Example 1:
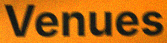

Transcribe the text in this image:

Venues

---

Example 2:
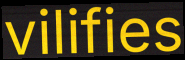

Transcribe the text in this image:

vilifies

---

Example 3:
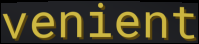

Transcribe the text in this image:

venient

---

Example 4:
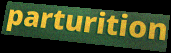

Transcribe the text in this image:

parturition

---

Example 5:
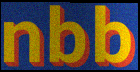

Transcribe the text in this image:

nbb